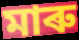
মাৰু